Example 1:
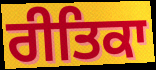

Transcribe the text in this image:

ਰੀਤਿਕਾ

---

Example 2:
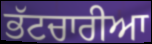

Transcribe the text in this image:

ਭੱਟਚਾਰੀਆ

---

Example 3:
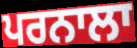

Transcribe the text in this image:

ਪਰਨਾਲਾ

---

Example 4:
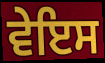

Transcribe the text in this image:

ਵੇਇਸ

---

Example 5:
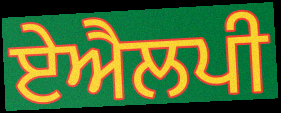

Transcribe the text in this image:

ਏਐਲਪੀ